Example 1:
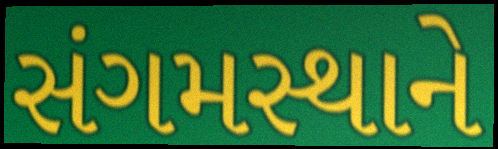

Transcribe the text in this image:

સંગમસ્થાને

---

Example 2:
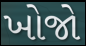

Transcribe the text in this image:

ખોજો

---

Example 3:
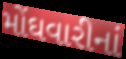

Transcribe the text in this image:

મોંઘવારીનાં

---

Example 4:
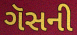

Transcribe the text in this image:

ગૅસની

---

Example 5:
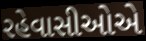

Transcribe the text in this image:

રહેવાસીઓએ